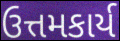
ઉત્તમકાર્ય